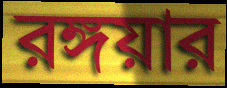
রঙ্গয়ার